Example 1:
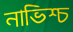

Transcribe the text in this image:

নাভিশ্চ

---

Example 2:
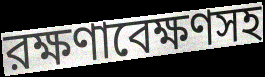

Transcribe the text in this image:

রক্ষণাবেক্ষণসহ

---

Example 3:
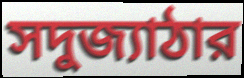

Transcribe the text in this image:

সদুজ্যাঠার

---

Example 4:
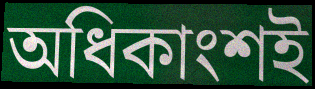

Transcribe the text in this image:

অধিকাংশই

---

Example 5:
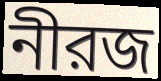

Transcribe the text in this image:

নীরজ